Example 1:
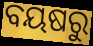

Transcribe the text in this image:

ବୟଷରୁ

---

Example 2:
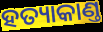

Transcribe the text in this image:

ହତ୍ୟାକାଣ୍ତ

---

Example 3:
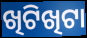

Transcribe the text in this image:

ଖିଟିଖିଟା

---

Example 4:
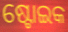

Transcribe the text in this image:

ଷ୍ଟୋଇକ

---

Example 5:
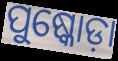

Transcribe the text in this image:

ପୁଷ୍କୋଡ଼ା